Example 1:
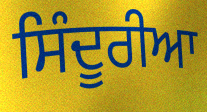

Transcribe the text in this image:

ਸਿੰਦੂਰੀਆ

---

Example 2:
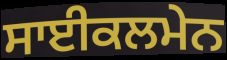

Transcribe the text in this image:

ਸਾਈਕਲਮੇਨ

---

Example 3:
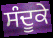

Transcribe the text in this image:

ਸੰਦੂਕੇ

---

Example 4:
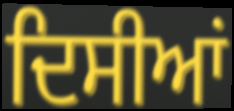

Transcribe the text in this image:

ਦਿਸੀਆਂ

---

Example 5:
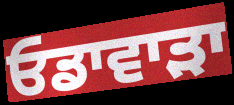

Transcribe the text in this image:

ਓਡਾਵਾੜਾ